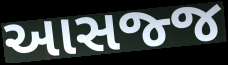
આસજ્જ